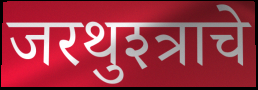
जरथुश्त्राचे